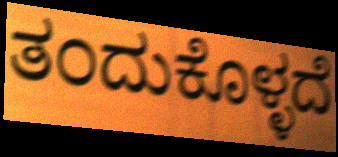
ತಂದುಕೊಳ್ಳದೆ